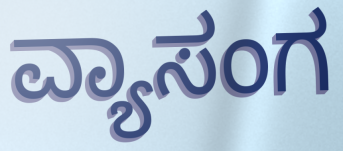
ವ್ಯಾಸಂಗ